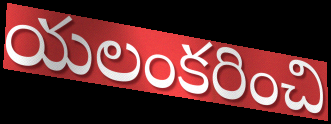
యలంకరించి